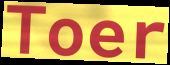
Toer